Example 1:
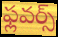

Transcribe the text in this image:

ఫ్లవర్స్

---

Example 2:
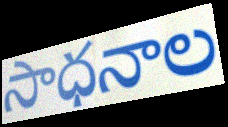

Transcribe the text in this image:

సాధనాల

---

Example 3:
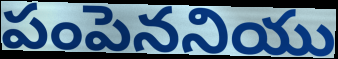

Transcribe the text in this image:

పంపెననియు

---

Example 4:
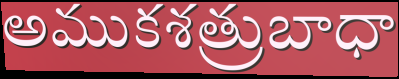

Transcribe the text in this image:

అముకశత్రుబాధా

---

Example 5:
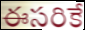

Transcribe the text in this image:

ఈసరికే